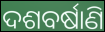
ଦଶବର୍ଷାଣି